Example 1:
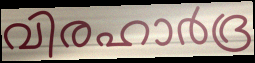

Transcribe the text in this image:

വിരഹാർദ്ര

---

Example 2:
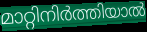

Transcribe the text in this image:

മാറ്റിനിർത്തിയാൽ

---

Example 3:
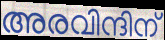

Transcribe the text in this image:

അരവിന്ദിന്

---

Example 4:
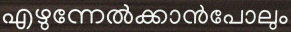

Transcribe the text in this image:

എഴുന്നേൽക്കാൻപോലും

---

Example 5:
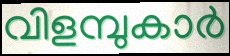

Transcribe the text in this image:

വിളമ്പുകാർ